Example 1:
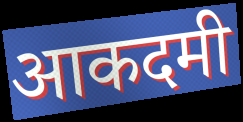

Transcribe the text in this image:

आकदमी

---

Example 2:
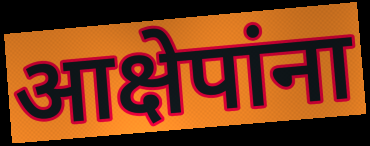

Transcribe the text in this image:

आक्षेपांना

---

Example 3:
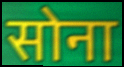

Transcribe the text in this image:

सोना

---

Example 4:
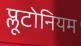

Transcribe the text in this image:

प्लूटोनियम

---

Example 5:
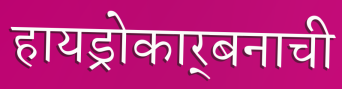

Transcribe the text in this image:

हायड्रोकार्बनाची